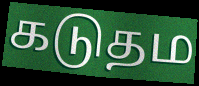
கடுதம